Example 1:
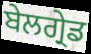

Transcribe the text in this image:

ਬੇਲਗ੍ਰੇਡ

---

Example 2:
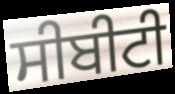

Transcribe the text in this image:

ਸੀਬੀਟੀ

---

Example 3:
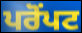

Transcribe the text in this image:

ਪਰੋਂਪਟ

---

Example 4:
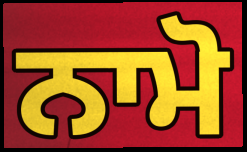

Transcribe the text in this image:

ਨਾਮੋ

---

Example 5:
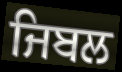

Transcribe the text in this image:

ਜਿਬਲ